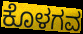
ಕೊಳಗವ